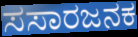
ಸಸಾರಜನಕ